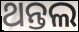
ଥନ୍ତଲ